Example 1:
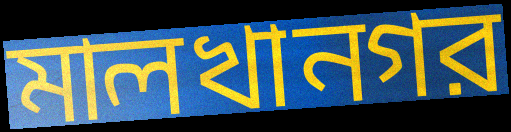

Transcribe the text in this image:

মালখানগর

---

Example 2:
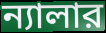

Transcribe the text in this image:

ন্যালার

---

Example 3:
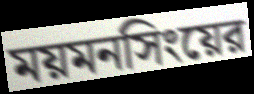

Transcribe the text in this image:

ময়মনসিংয়ের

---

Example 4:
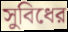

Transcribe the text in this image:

সুবিধের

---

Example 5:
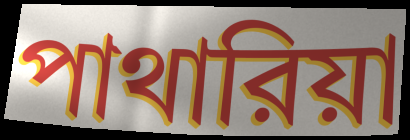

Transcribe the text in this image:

পাথারিয়া